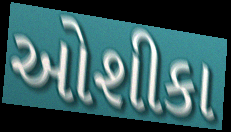
ઓશીકા